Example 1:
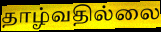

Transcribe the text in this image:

தாழ்வதில்லை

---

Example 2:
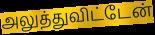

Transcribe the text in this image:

அலுத்துவிட்டேன்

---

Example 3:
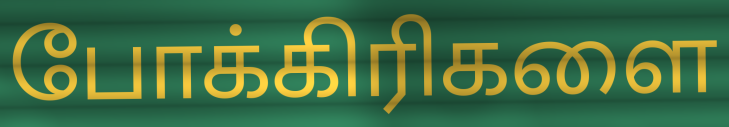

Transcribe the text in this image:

போக்கிரிகளை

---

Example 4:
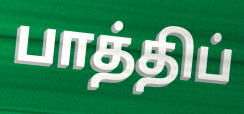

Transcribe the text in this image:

பாத்திப்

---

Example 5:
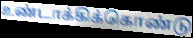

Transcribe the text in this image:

உண்டாக்கிக்கொண்டு